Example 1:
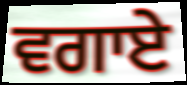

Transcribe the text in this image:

ਵਗਾਏ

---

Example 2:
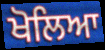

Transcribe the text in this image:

ਖੋਲਿਆ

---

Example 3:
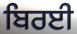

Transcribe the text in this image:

ਬਿਰਈ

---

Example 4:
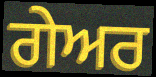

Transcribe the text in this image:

ਗੇਅਰ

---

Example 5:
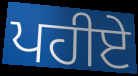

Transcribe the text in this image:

ਪਹੀਏ